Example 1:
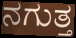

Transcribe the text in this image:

ನಗುತ್ತ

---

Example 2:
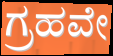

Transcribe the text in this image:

ಗ್ರಹವೇ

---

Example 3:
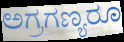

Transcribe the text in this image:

ಅಗ್ರಗಣ್ಯರೂ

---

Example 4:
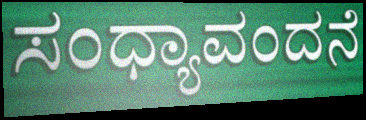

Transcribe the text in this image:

ಸಂಧ್ಯಾವಂದನೆ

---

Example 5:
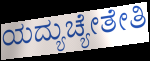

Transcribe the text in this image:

ಯದ್ಯುಚ್ಯೇತೇತಿ